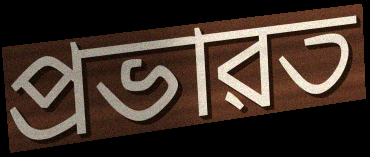
প্ৰভাৱত